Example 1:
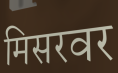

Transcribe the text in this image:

मिसरवर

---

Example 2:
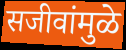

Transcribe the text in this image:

सजीवांमुळे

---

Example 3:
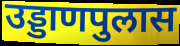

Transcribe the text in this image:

उड्डाणपुलास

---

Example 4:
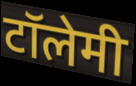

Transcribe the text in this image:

टॉलेमी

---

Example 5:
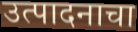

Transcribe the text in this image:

उत्पादनाचा